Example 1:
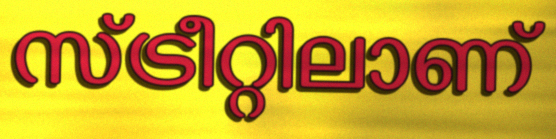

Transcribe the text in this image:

സ്ട്രീറ്റിലാണ്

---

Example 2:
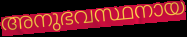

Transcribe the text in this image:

അനുഭവസ്ഥനായ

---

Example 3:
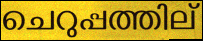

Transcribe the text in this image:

ചെറുപ്പത്തില്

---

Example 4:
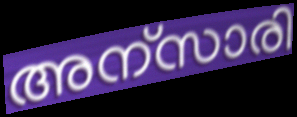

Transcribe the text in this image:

അന്സാരി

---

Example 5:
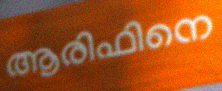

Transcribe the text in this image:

ആരിഫിനെ